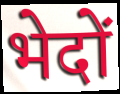
भेदों